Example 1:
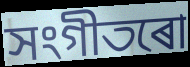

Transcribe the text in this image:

সংগীতৰো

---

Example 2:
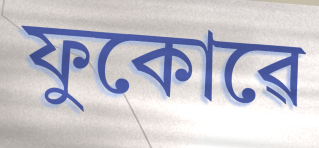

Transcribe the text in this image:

ফুকোৱে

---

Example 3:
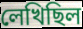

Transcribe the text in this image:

লেখিছিল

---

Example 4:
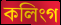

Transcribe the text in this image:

কলিংগ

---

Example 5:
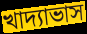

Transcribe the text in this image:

খাদ্যাভাস